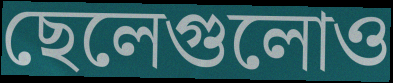
ছেলেগুলোও